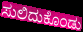
ಸುಲಿದುಕೊಂಡು